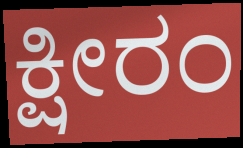
ಕ್ಷೀರಂ